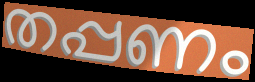
തപ്പണം